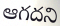
ఆగదని